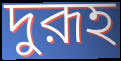
দুরূহ